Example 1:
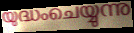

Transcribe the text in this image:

യുദ്ധംചെയ്യുന്നു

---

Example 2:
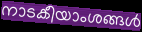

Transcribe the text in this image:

നാടകീയാംശങ്ങൾ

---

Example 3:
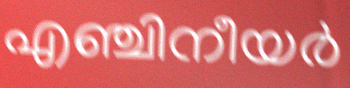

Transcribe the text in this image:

എഞ്ചിനീയർ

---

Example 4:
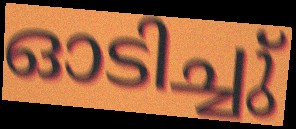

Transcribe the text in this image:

ഓടിച്ചു്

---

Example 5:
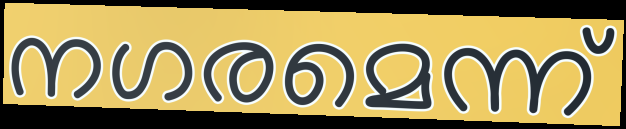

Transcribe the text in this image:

നഗരമെന്ന്